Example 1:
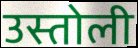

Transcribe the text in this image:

उस्तोली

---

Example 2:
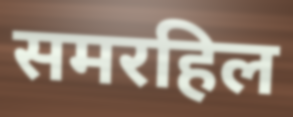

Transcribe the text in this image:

समरहिल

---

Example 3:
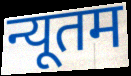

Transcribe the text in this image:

न्यूतम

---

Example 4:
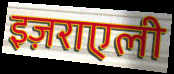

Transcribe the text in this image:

इज़राएली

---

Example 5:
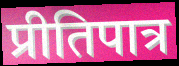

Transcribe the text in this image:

प्रीतिपात्र